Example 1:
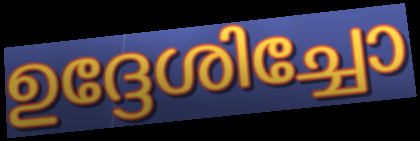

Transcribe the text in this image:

ഉദ്ദേശിച്ചോ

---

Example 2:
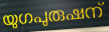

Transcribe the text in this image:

യുഗപുരുഷന്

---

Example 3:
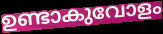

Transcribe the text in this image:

ഉണ്ടാകുവോളം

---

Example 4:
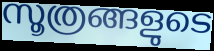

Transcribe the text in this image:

സൂത്രങ്ങളുടെ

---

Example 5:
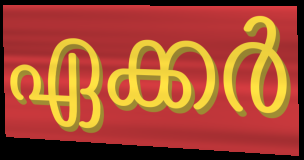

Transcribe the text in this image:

ഏക്കർ